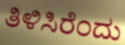
ತಿಳಿಸಿರೆಂದು